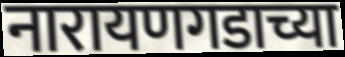
नारायणगडाच्या